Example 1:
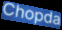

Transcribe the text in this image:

Chopda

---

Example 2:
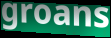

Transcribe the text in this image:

groans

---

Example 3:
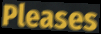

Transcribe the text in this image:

Pleases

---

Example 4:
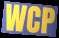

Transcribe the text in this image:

WCP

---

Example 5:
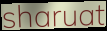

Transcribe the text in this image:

sharuat